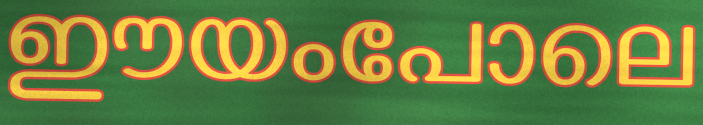
ഈയംപോലെ